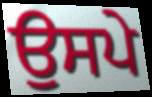
ਉਸਪੇ